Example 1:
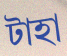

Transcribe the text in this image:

টাহা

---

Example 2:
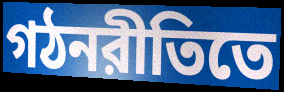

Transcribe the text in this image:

গঠনরীতিতে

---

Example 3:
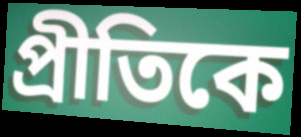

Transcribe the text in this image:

প্রীতিকে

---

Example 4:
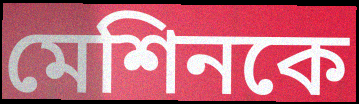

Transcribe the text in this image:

মেশিনকে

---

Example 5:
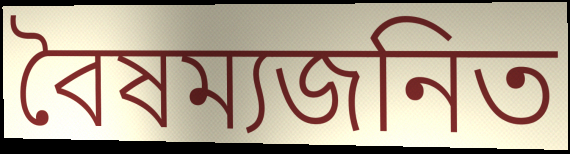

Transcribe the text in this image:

বৈষম্যজনিত